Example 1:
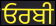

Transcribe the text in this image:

ਓਰਬੀ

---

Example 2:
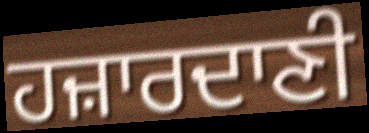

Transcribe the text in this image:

ਹਜ਼ਾਰਦਾਣੀ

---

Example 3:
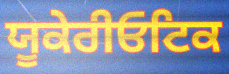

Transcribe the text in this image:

ਯੂਕੇਰੀਓਟਿਕ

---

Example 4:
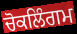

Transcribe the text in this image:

ਚੋਕਲਿੰਗਮ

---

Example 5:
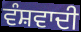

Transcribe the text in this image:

ਵੰਸ਼ਵਾਦੀ